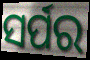
ସର୍ପର